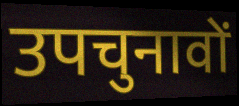
उपचुनावों